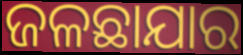
ଜଳଛାଯାର